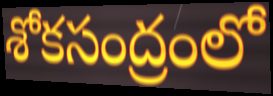
శోకసంద్రంలో